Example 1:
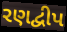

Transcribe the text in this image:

રણદ્વીપ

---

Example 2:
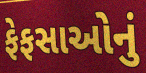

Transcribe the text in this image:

ફેફસાઓનું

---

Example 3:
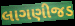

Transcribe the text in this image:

લાગણીજડ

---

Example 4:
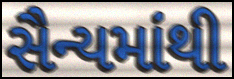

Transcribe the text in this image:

સૈન્યમાંથી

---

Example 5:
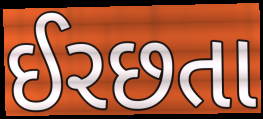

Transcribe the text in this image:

ઈરછતા